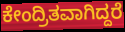
ಕೇಂದ್ರಿತವಾಗಿದ್ದರೆ